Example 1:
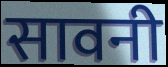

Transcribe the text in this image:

सावनी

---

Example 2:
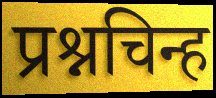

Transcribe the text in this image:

प्रश्नचिन्ह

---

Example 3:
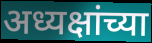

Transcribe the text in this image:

अध्यक्षांच्या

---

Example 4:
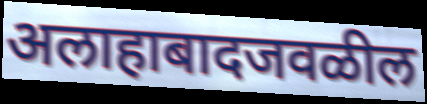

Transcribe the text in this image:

अलाहाबादजवळील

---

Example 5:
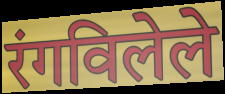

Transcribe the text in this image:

रंगविलेले